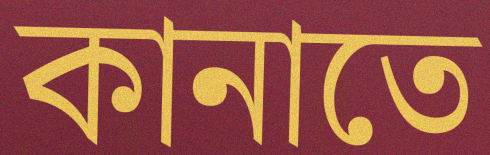
কানাতে